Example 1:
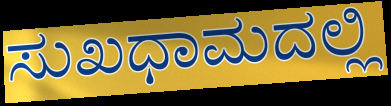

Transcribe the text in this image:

ಸುಖಧಾಮದಲ್ಲಿ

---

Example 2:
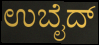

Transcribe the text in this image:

ಉಬೈದ್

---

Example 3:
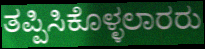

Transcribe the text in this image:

ತಪ್ಪಿಸಿಕೊಳ್ಳಲಾರರು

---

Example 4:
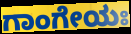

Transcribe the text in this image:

ಗಾಂಗೇಯಃ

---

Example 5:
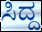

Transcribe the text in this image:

ಸಿದ್ದ